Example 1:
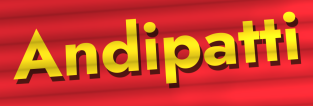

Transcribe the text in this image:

Andipatti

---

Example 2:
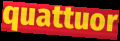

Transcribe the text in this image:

quattuor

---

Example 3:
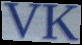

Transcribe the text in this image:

VK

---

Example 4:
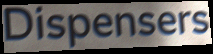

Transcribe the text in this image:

Dispensers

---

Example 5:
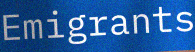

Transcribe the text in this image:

Emigrants